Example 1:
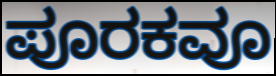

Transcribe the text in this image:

ಪೂರಕವೂ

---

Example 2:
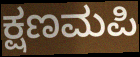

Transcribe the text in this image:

ಕ್ಷಣಮಪಿ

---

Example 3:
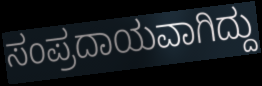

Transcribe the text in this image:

ಸಂಪ್ರದಾಯವಾಗಿದ್ದು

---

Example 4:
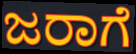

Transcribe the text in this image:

ಜರಾಗೆ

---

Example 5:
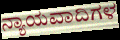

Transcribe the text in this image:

ನ್ಯಾಯವಾದಿಗಳ